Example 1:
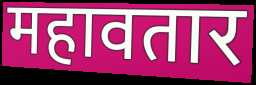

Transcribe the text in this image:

महावतार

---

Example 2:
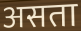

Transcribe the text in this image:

असता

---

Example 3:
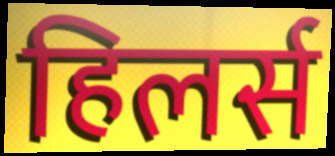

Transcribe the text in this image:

हिलर्स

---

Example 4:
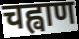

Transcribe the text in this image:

चह्वाण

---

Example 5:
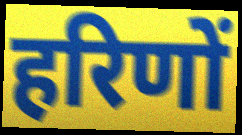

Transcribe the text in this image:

हरिणों